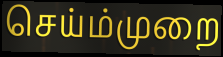
செய்ம்முறை